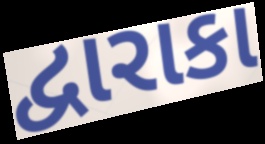
દ્વારાકા